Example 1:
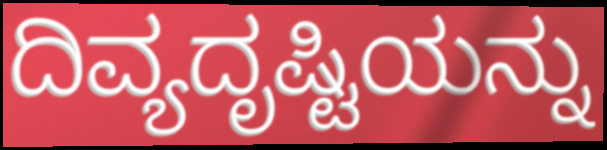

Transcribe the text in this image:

ದಿವ್ಯದೃಷ್ಟಿಯನ್ನು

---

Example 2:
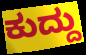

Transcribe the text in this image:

ಕುದ್ದು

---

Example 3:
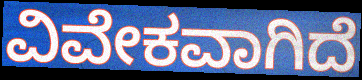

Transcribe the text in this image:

ವಿವೇಕವಾಗಿದೆ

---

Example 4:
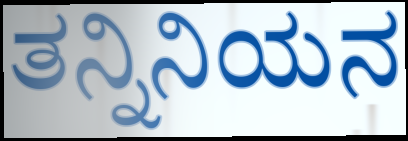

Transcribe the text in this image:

ತನ್ನಿನಿಯನ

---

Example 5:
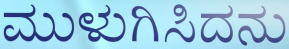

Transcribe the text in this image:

ಮುಳುಗಿಸಿದನು